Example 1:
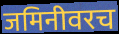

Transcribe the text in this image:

जमिनीवरच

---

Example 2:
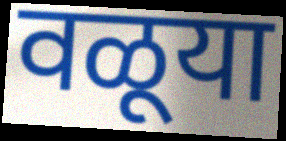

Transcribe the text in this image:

वळूया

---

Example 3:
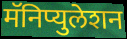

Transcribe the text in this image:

मॅनिप्युलेशन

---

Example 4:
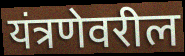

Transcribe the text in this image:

यंत्रणेवरील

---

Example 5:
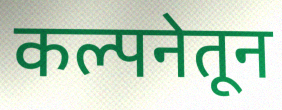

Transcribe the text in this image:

कल्पनेतून